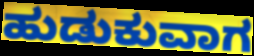
ಹುಡುಕುವಾಗ